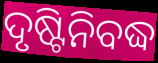
ଦୃଷ୍ଟିନିବଦ୍ଧ